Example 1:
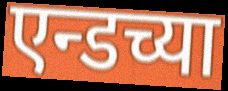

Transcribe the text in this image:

एन्डच्या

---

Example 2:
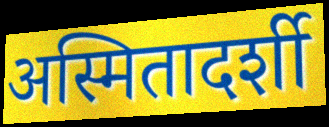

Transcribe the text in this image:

अस्मितादर्शी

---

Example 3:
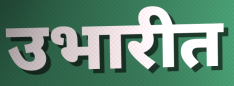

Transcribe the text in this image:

उभारीत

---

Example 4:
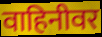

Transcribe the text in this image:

वाहिनीवर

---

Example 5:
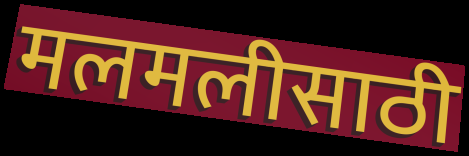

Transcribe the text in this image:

मलमलीसाठी